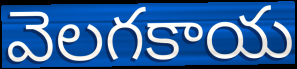
వెలగకాయ